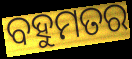
ବହୁମତର